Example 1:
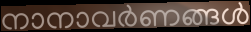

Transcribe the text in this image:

നാനാവർണങ്ങൾ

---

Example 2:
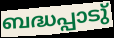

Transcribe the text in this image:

ബദ്ധപ്പാടു്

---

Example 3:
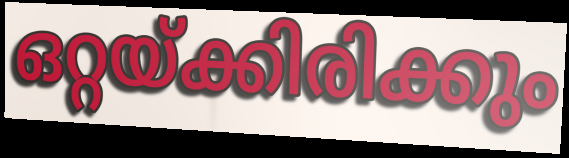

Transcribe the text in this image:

ഒറ്റയ്ക്കിരിക്കും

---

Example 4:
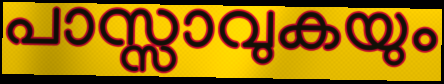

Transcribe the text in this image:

പാസ്സാവുകയും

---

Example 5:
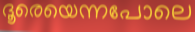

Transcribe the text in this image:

ദൂരെയെന്നപോലെ